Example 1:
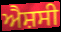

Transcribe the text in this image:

ਐਸ਼ਸੀ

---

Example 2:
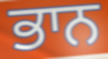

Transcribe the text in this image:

ਭਾਨ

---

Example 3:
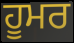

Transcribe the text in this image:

ਹੂਮਰ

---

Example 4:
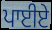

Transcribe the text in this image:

ਪਾਈਏ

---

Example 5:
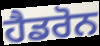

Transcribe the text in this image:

ਹੈਡਰੋਨ